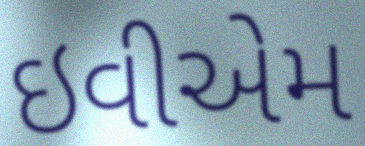
ઇવીએમ